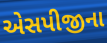
એસપીજીના